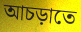
আচড়াতে